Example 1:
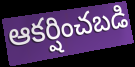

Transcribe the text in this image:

ఆకర్షించబడి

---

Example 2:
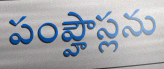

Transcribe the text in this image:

పంప్హౌస్లను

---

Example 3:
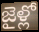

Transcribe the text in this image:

జైళ్లో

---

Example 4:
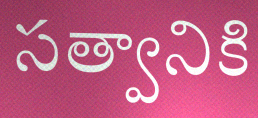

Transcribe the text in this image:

సత్వానికి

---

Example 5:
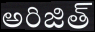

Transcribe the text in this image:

అరిజిత్